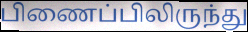
பிணைப்பிலிருந்து